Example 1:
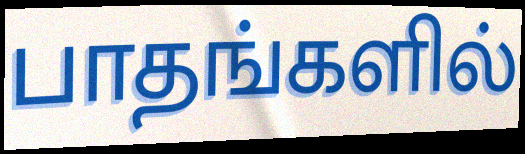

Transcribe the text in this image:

பாதங்களில்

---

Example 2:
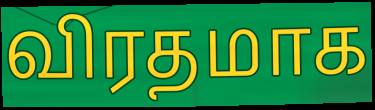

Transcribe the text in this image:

விரதமாக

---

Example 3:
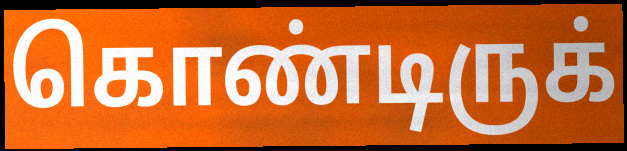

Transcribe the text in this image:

கொண்டிருக்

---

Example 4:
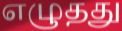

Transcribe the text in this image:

எழுதது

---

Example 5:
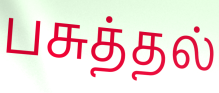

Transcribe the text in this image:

பசுத்தல்